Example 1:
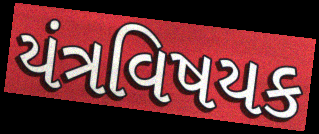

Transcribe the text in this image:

યંત્રવિષયક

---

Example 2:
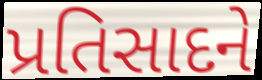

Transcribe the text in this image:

પ્રતિસાદને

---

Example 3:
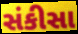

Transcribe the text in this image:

સંકીસા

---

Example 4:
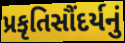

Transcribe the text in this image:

પ્રકૃતિસૌંદર્યનું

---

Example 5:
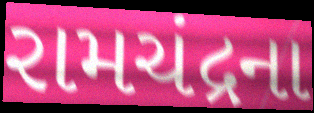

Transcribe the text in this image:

રામચંદ્રના